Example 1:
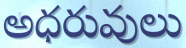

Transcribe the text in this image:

అధరువులు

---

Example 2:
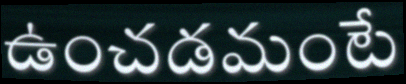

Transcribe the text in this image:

ఉంచడమంటే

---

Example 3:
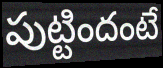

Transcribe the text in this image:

పుట్టిందంటే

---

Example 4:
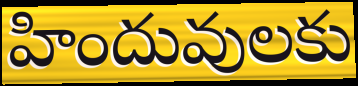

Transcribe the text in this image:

హిందువులకు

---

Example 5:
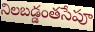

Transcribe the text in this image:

నిలబడ్డంతసేపూ